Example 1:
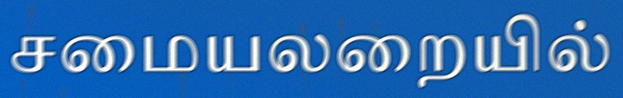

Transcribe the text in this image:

சமையலறையில்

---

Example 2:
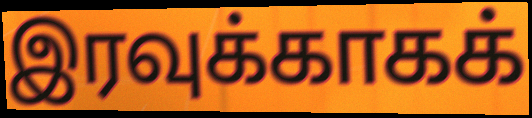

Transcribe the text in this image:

இரவுக்காகக்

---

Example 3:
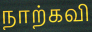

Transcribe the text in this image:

நாற்கவி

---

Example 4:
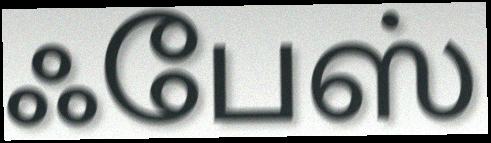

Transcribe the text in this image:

ஃபேஸ்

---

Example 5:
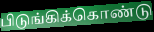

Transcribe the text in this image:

பிடுங்கிக்கொண்டு